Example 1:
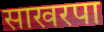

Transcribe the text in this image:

साखरपा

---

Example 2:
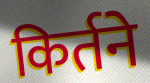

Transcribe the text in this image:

किर्तने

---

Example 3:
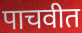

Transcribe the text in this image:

पाचवीत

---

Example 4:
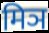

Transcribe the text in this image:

मिञ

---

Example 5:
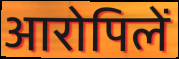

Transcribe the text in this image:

आरोपिलें